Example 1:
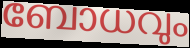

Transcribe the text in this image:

ബോധവും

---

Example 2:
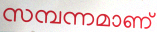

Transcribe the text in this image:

സമ്പന്നമാണ്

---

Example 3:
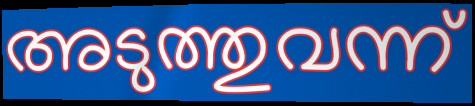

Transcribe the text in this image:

അടുത്തുവന്ന്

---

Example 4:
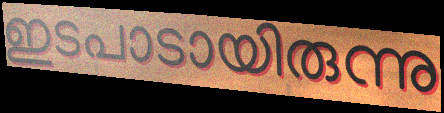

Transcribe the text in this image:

ഇടപാടായിരുന്നു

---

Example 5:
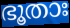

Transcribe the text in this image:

ഭൂതാഃ